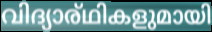
വിദ്യാര്ഥികളുമായി